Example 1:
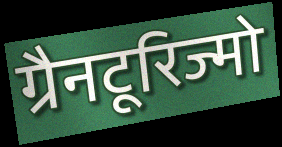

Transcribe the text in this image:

ग्रैनटूरिज्मो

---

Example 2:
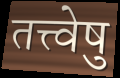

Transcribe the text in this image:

तत्त्वेषु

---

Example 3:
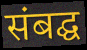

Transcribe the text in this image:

संबद्घ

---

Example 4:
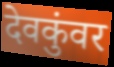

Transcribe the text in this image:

देवकुंवर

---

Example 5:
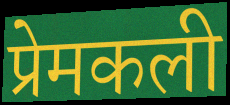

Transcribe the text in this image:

प्रेमकली